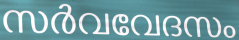
സർവവേദസം